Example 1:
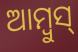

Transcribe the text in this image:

ଆମ୍ବୁସ୍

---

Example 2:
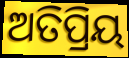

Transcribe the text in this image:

ଅତିପ୍ରିୟ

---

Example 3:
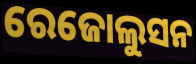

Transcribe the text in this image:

ରେଜୋଲୁସନ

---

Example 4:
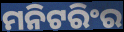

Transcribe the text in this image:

ମନିଟରିଂର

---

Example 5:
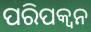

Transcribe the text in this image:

ପରିପକ୍ବନ